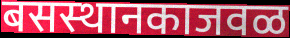
बसस्थानकाजवळ